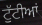
ਟੁੱਟੀਆਂ